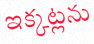
ఇక్కట్లను